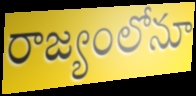
రాజ్యంలోనూ